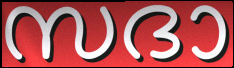
സദാ